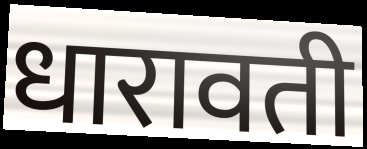
धारावती